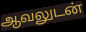
ஆவலுடன்